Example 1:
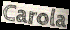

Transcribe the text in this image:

Carola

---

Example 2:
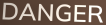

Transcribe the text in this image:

DANGER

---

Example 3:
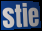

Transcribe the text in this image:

stie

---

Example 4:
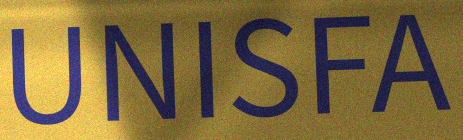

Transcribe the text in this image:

UNISFA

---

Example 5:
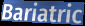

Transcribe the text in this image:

Bariatric